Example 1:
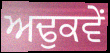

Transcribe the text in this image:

ਅਢੁਕਵੇਂ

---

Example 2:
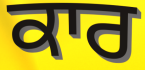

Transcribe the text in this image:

ਕਾਰ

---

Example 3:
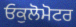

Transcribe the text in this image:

ਓਕੁਲੋਮੋਟਰ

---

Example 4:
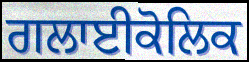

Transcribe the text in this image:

ਗਲਾਈਕੋਲਿਕ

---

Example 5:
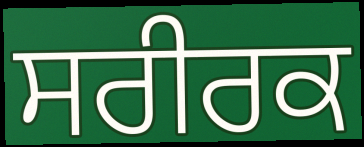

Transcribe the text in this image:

ਸਰੀਰਕ